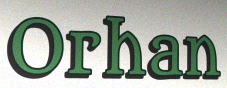
Orhan